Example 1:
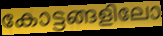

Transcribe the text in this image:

കോട്ടങ്ങളിലോ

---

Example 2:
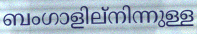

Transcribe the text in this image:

ബംഗാളില്നിന്നുള്ള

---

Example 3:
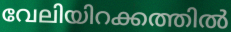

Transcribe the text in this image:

വേലിയിറക്കത്തിൽ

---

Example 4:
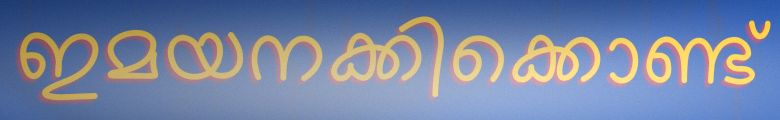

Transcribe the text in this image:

ഇമയനക്കിക്കൊണ്ട്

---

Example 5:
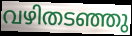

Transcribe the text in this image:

വഴിതടഞ്ഞു